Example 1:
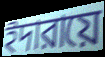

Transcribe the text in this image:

ইদারায়ে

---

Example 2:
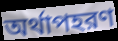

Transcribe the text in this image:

অর্থাপহরণ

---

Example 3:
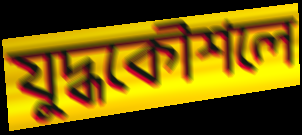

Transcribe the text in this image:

যুদ্ধকৌশলে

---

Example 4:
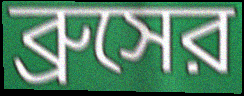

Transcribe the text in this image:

ব্রুসের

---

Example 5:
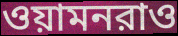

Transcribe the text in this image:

ওয়ামনরাও